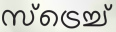
സ്ട്രെച്ച്